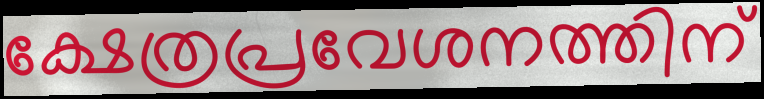
ക്ഷേത്രപ്രവേശനത്തിന്